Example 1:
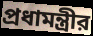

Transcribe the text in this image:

প্রধামন্ত্রীর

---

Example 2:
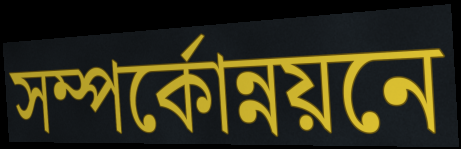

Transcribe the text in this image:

সম্পর্কোন্নয়নে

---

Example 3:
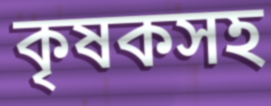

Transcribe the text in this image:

কৃষকসহ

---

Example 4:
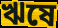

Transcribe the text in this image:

ঋষে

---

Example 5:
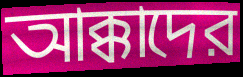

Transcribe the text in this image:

আক্কাদের